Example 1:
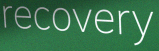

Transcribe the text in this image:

recovery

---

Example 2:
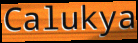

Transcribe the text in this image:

Calukya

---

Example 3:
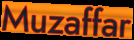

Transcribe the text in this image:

Muzaffar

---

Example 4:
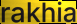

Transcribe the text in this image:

rakhia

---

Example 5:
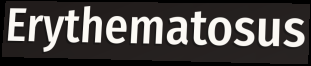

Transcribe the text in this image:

Erythematosus